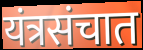
यंत्रसंचात